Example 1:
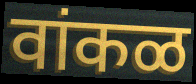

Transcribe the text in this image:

वांकळ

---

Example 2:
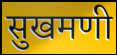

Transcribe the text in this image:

सुखमणी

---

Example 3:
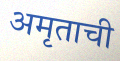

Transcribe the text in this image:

अमृताची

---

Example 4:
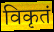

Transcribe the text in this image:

विकृतं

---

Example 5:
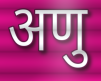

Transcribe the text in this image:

अणु